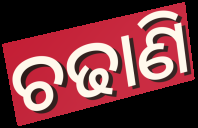
ଚଢାଣି